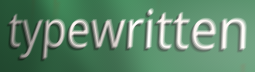
typewritten